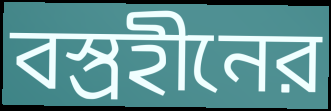
বস্ত্রহীনের